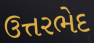
ઉત્તરભેદ